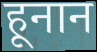
हूनान